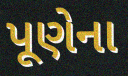
પૂણેના